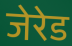
जेरेड